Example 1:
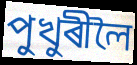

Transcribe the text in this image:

পুখুৰীলৈ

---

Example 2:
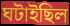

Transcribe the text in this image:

ঘটাইছিল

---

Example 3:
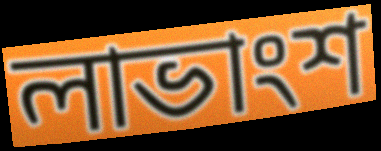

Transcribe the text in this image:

লাভাংশ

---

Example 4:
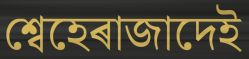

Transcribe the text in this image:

শ্বেহেৰাজাদেই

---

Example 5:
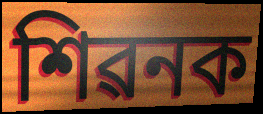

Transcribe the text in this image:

শিৱনক